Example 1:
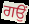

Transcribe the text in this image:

ਗਉਂ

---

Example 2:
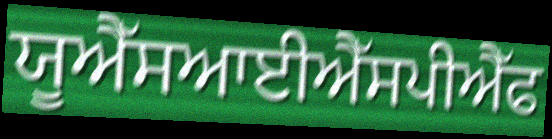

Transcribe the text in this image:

ਯੂਐੱਸਆਈਐੱਸਪੀਐੱਫ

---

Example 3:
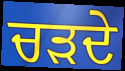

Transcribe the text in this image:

ਚੜਦੇ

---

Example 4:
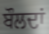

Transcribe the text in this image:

ਬੌਲਦਾਂ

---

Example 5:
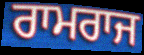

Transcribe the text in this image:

ਰਾਮਰਾਜ